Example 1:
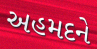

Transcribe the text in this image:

અહમદને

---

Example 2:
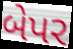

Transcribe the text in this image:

બેપર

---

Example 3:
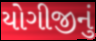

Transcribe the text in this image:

યોગીજીનું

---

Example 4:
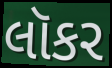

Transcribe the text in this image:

લૉકર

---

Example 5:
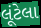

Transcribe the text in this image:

લૂંટેલા